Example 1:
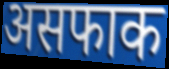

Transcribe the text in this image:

असफाक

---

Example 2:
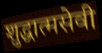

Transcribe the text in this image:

शुद्धात्मसेवी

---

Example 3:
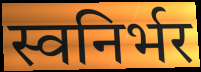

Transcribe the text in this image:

स्वनिर्भर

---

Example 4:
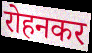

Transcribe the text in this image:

रोहनकर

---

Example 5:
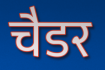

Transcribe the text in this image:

चैडर